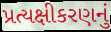
પ્રત્યક્ષીકરણનું